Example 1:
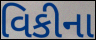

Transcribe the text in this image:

વિકીના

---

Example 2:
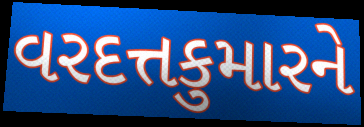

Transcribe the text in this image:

વરદત્તકુમારને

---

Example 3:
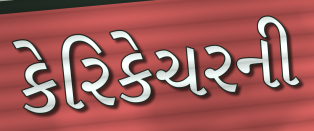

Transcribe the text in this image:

કેરિકેચરની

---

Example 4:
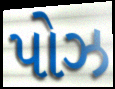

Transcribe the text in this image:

પોઝ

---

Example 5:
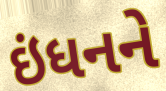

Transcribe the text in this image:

ઇંધનને